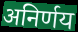
अनिर्णय